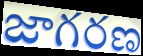
జాగరణ